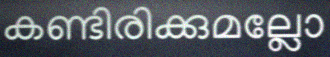
കണ്ടിരിക്കുമല്ലോ